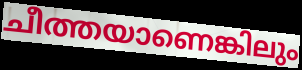
ചീത്തയാണെങ്കിലും